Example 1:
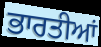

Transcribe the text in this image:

ਭਾਰਤੀਆਂ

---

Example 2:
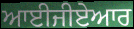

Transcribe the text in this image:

ਆਈਜੀਏਆਰ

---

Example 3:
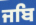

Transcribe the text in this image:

ਜਬਿ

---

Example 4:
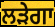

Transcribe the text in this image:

ਲੜੇਗਾ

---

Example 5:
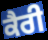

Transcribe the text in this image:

ਕੈਰੀ